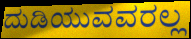
ದುಡಿಯುವವರಲ್ಲ